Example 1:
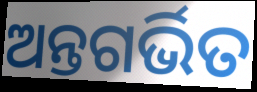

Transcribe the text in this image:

ଅନ୍ତଗର୍ଭିତ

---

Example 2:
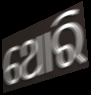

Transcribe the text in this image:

ଥୋରି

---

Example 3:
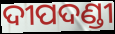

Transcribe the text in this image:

ଦୀପଦଣ୍ଡୀ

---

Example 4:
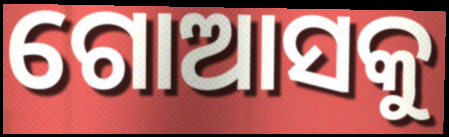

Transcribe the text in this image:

ଗୋଆସକୁ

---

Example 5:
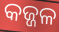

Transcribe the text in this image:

କଜ୍ଜଳ